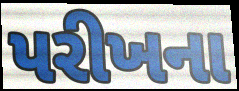
પરીખના